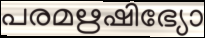
പരമഋഷിഭ്യോ